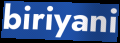
biriyani